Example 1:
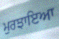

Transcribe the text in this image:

ਮੁਰਝਾਇਆ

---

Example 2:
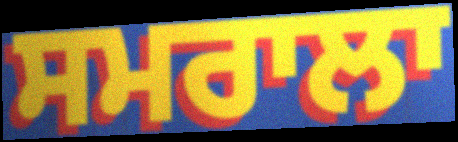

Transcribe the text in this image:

ਸਮਰਾਲਾ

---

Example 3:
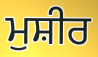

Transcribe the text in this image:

ਮੁਸ਼ੀਰ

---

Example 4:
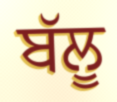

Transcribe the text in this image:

ਬੱਲੂ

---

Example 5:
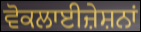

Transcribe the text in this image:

ਵੋਕਲਾਈਜ਼ੇਸ਼ਨਾਂ